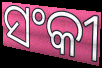
ସଂକୀ